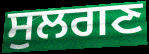
ਸੁਲਗਣ